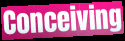
Conceiving